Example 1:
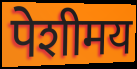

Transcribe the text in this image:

पेशीमय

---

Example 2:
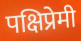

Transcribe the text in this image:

पक्षिप्रेमी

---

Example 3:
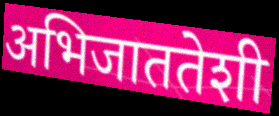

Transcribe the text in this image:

अभिजाततेशी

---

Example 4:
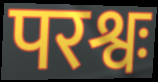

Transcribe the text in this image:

परश्वः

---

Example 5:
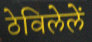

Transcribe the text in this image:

ठेविलेलें